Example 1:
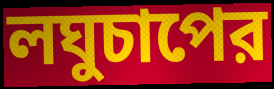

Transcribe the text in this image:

লঘুচাপের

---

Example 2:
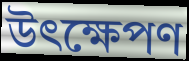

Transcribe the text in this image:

উৎক্ষেপণ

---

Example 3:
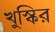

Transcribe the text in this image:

খুস্কির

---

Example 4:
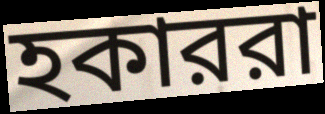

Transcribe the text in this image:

হকাররা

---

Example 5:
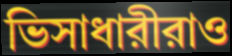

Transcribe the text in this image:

ভিসাধারীরাও